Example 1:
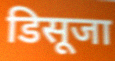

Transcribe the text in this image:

डिसूजा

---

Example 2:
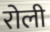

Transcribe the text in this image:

रोली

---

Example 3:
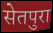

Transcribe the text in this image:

सेतपुरा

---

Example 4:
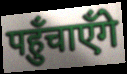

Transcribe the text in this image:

पहुँचाएँगे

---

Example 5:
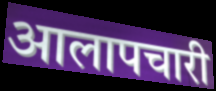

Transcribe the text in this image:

आलापचारी